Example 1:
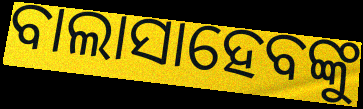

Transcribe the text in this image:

ବାଲାସାହେବଙ୍କୁ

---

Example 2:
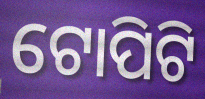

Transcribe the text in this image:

ଟୋପିଟି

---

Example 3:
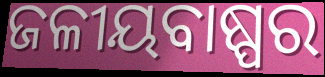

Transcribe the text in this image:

ଜଳୀୟବାଷ୍ପର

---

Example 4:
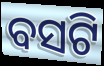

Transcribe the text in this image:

ବସଟି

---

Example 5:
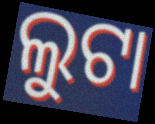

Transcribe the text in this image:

ଲୁଟା